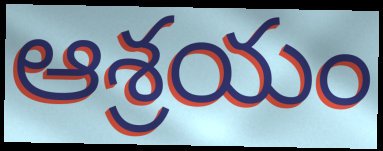
ఆశ్రయం